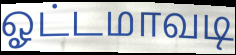
ஓட்டமாவடி